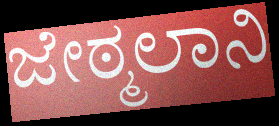
ಜೇಠ್ಮಲಾನಿ